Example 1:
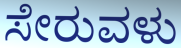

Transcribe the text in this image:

ಸೇರುವಳು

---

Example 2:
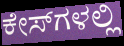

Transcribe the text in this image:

ಕೇಸ್‌ಗಳಲ್ಲಿ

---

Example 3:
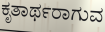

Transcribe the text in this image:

ಕೃತಾರ್ಥರಾಗುವ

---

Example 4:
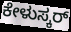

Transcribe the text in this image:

ಕೇಳುಸ್ಕರ್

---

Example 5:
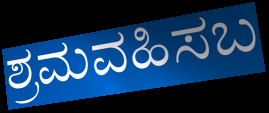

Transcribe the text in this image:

ಶ್ರಮವಹಿಸಬ